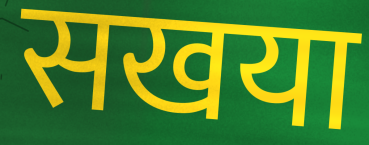
सखया